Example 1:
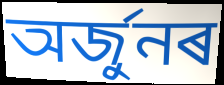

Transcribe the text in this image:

অৰ্জুনৰ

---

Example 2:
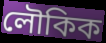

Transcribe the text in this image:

লৌকিক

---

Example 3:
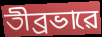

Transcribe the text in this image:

তীব্ৰভাৱে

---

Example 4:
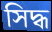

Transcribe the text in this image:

সিদ্ধ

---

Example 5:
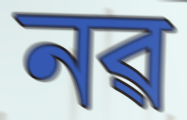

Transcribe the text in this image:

নৱ